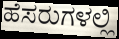
ಹೆಸರುಗಳಲ್ಲಿ